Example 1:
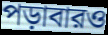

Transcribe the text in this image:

পড়াবারও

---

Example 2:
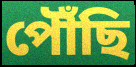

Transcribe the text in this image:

পৌঁছি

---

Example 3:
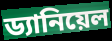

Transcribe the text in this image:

ড্যানিয়েল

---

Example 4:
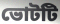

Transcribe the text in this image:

ভোটটি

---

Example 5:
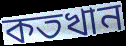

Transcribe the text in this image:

কতখান